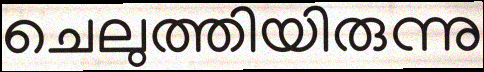
ചെലുത്തിയിരുന്നു